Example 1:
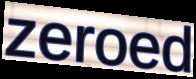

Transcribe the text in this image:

zeroed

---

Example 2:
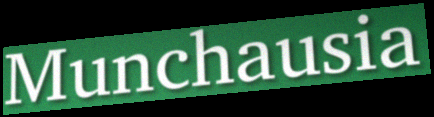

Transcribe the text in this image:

Munchausia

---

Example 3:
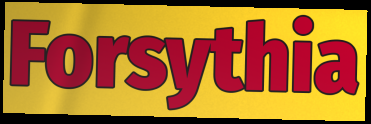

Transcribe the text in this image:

Forsythia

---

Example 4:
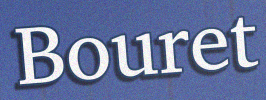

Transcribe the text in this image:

Bouret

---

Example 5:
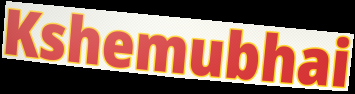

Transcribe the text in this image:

Kshemubhai